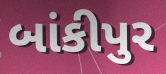
બાંકીપુર